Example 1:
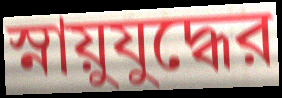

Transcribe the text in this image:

স্নায়ুযুদ্ধের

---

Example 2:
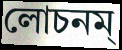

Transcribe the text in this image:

লোচনম্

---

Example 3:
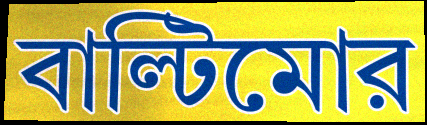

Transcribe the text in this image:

বাল্টিমোর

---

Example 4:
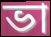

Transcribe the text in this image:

ভা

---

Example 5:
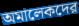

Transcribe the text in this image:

অমালেকদের